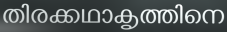
തിരക്കഥാകൃത്തിനെ